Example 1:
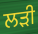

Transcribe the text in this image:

ਲਡ਼ੀ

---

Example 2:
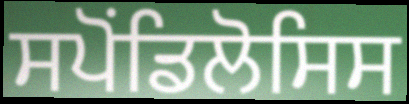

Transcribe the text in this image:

ਸਪੋਂਡਿਲੋਸਿਸ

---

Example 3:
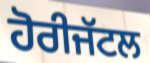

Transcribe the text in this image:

ਹੋਰੀਜੱਟਲ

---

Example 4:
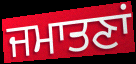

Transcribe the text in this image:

ਜਮਾਤਣਾਂ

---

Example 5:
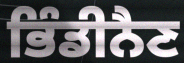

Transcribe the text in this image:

ਭਿੰਡੀਨੈਣ